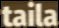
taila